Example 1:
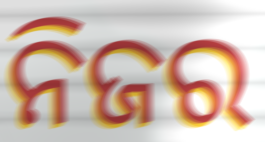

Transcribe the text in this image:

ନିଜର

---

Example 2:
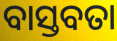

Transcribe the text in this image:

ବାସ୍ତବତା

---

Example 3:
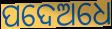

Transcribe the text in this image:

ପଦେଅଧେ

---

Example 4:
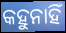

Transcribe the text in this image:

କହୁନାହିଁ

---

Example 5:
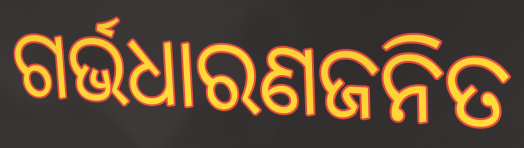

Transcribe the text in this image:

ଗର୍ଭଧାରଣଜନିତ